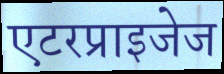
एटरप्राइजेज